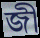
জী